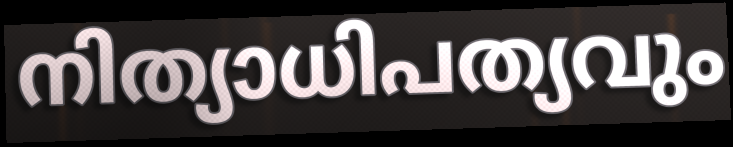
നിത്യാധിപത്യവും